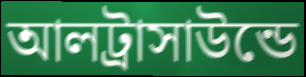
আলট্রাসাউন্ডে